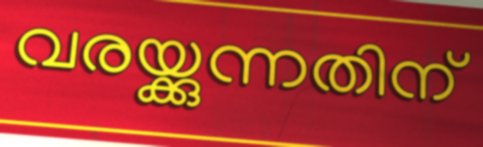
വരയ്ക്കുന്നതിന്